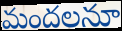
మందలనూ